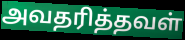
அவதரித்தவள்